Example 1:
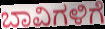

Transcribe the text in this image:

ಬಾವಿಗಳಿಗೆ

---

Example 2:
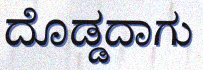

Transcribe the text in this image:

ದೊಡ್ಡದಾಗು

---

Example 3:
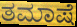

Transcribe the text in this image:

ತಮಾಷೆ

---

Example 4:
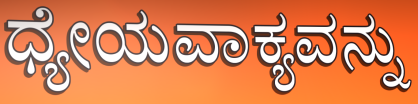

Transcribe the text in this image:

ಧ್ಯೇಯವಾಕ್ಯವನ್ನು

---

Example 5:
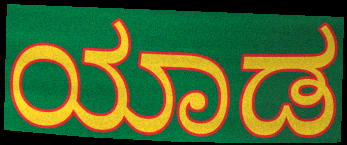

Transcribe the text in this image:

ಯಾಡ